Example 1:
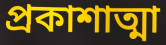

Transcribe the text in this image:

প্রকাশাত্মা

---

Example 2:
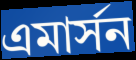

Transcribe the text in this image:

এমার্সন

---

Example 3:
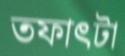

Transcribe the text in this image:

তফাৎটা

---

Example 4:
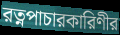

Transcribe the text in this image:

রত্নপাচারকারিণীর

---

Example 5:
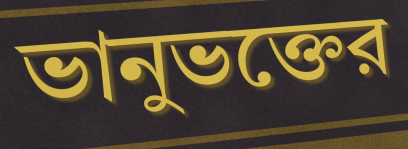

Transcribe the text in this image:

ভানুভক্তের